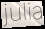
julia